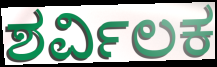
ಶರ್ವಿಲಕ